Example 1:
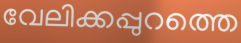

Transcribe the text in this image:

വേലിക്കപ്പുറത്തെ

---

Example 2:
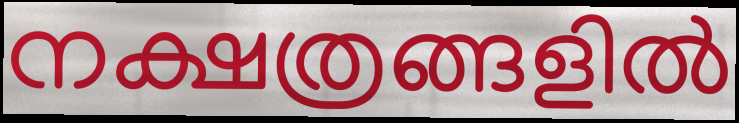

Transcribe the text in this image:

നക്ഷത്രങ്ങളിൽ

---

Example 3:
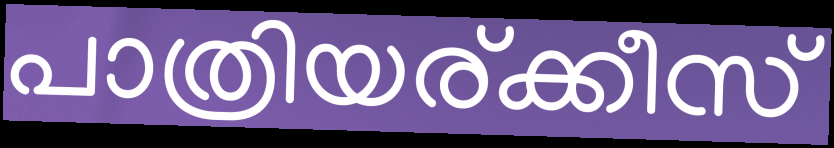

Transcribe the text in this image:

പാത്രിയര്ക്കീസ്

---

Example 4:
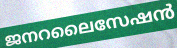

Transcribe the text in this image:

ജനറലൈസേഷൻ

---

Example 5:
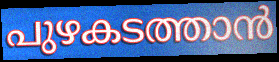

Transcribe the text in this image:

പുഴകടത്താൻ